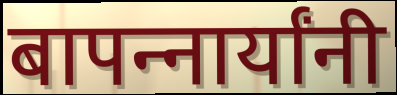
बापन्नार्यांनी